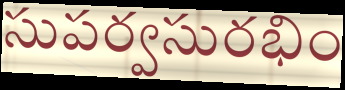
సుపర్వసురభిం